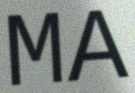
MA